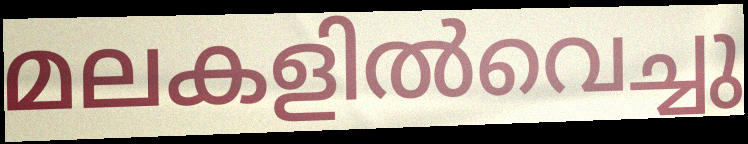
മലകളിൽവെച്ചു